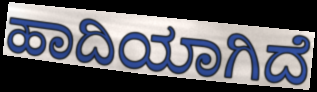
ಹಾದಿಯಾಗಿದೆ